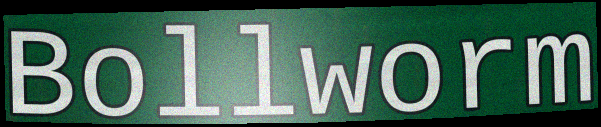
Bollworm